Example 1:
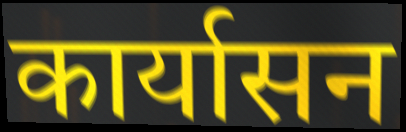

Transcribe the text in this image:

कार्यासन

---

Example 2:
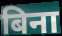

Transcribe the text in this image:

बिना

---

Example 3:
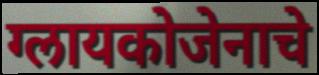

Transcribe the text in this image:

ग्लायकोजेनाचे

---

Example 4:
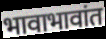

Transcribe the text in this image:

भावाभावांत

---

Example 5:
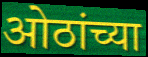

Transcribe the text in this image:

ओठांच्या